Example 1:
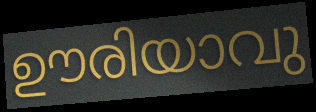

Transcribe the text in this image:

ഊരിയാവു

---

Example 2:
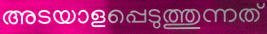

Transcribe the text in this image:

അടയാളപ്പെടുത്തുന്നത്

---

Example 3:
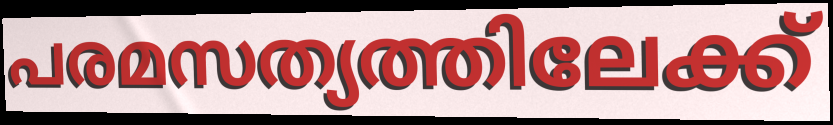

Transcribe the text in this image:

പരമസത്യത്തിലേക്ക്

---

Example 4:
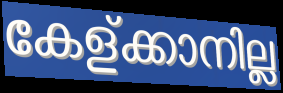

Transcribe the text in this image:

കേള്ക്കാനില്ല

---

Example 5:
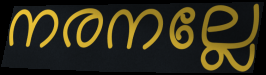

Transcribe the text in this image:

നരനല്ലേ